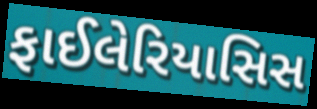
ફાઈલેરિયાસિસ